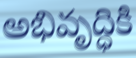
అభివృద్ధికి